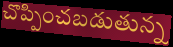
చొప్పించబడుతున్న